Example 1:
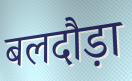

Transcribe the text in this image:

बलदौड़ा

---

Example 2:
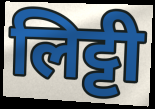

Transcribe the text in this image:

लिट्टी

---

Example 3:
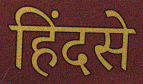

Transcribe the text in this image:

हिंदसे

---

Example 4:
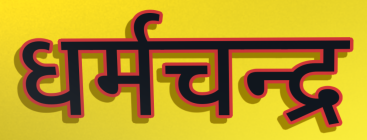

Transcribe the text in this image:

धर्मचन्द्र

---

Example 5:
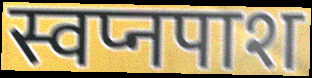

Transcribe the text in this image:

स्वप्नपाश